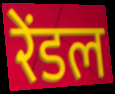
रेंडल